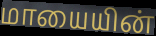
மாயையின்